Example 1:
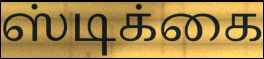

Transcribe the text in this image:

ஸ்டிக்கை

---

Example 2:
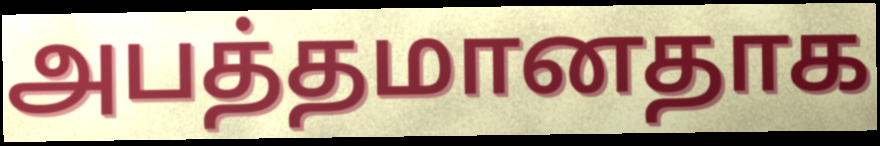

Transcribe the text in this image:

அபத்தமானதாக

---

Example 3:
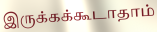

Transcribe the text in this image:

இருக்கக்கூடாதாம்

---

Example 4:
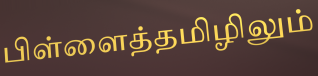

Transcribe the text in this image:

பிள்ளைத்தமிழிலும்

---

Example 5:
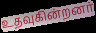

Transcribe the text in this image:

உதவுகின்றனர்